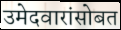
उमेदवारांसोबत